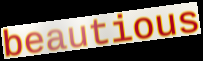
beautious